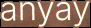
anyay